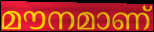
മൗനമാണ്